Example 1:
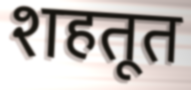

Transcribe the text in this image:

शहतूत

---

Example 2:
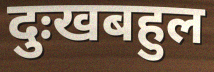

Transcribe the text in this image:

दुःखबहुल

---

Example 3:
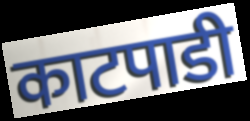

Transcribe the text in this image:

काटपाडी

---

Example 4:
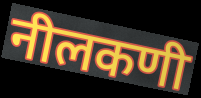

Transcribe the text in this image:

नीलकणी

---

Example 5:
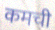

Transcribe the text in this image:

कमची